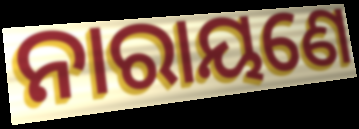
ନାରାୟଣେ